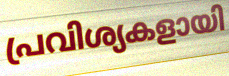
പ്രവിശ്യകളായി